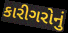
કારીગરોનું